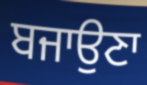
ਬਜਾਉਣਾ